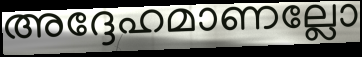
അദ്ദേഹമാണല്ലോ